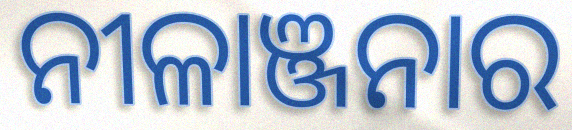
ନୀଳାଞ୍ଜନାର